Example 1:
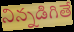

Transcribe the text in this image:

నిన్నడిగితే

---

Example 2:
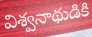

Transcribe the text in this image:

విశ్వనాథుడికి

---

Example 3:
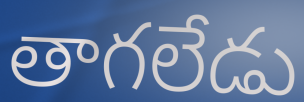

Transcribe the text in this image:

తాగలేడు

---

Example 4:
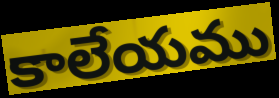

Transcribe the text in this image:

కాలేయము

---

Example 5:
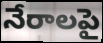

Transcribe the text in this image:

నేరాలపై